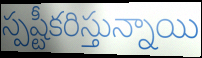
స్పష్టీకరిస్తున్నాయి